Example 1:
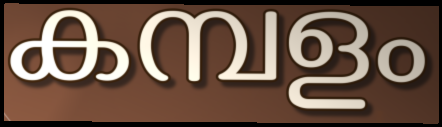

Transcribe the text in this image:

കമ്പളം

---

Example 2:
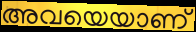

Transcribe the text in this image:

അവയെയാണ്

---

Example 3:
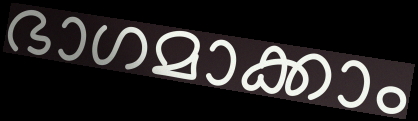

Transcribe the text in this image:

ഭാഗമാക്കാം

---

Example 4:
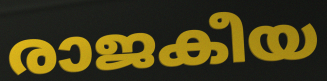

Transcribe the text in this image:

രാജകീയ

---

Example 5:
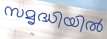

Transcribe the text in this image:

സമൃദ്ധിയിൽ